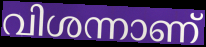
വിശന്നാണ്